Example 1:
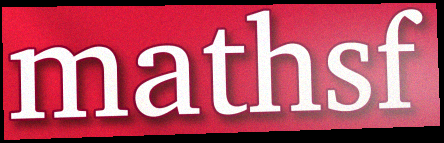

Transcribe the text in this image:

mathsf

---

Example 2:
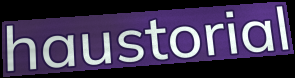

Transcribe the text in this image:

haustorial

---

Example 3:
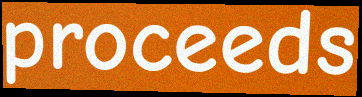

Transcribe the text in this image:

proceeds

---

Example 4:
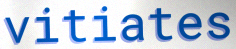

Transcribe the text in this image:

vitiates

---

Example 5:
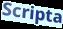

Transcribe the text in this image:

Scripta